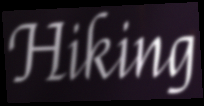
Hiking